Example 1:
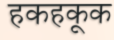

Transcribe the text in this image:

हकहकूक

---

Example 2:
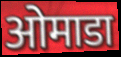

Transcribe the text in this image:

ओमाडा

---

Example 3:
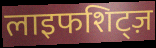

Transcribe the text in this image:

लाइफशिट्ज़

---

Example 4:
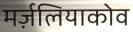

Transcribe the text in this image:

मर्ज़लियाकोव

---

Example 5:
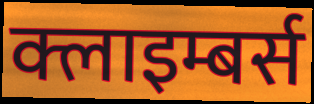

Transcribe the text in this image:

क्लाइम्बर्स